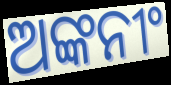
ଅଙ୍କନୀଂ